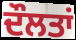
ਦੌਲਤਾਂ